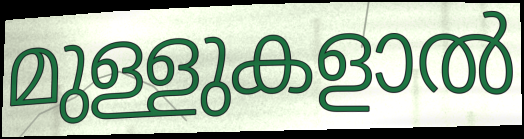
മുള്ളുകളാൽ